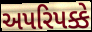
અપરિપક્કે